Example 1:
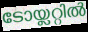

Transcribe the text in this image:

ടോയ്ലറ്റിൽ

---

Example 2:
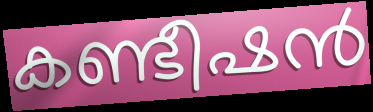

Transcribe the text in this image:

കണ്ടീഷൻ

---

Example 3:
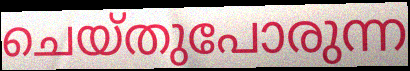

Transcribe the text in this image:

ചെയ്തുപോരുന്ന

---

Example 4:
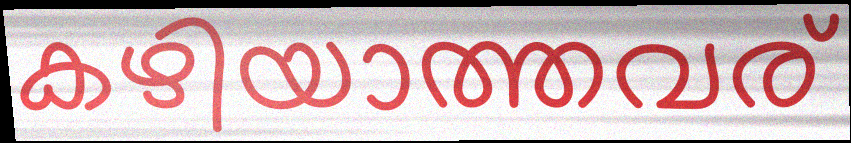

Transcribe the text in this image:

കഴിയാത്തവര്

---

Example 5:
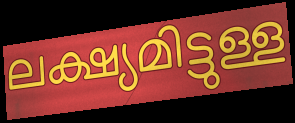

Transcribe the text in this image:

ലക്ഷ്യമിട്ടുള്ള